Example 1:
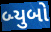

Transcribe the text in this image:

બ્યુબો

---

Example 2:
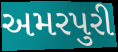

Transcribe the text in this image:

અમરપુરી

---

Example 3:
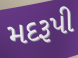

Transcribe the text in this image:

મદરૂપી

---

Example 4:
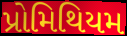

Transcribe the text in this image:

પ્રોમિથિયમ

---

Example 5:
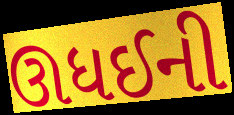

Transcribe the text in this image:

ઊધઈની